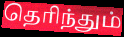
தெரிந்தும்